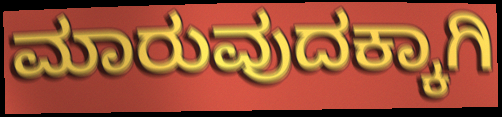
ಮಾರುವುದಕ್ಕಾಗಿ